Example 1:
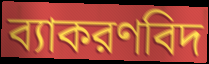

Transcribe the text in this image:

ব্যাকরণবিদ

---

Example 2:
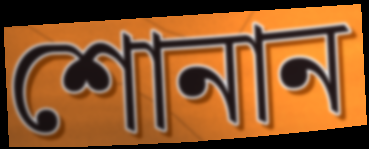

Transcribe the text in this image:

শোনান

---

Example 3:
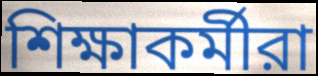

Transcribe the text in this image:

শিক্ষাকর্মীরা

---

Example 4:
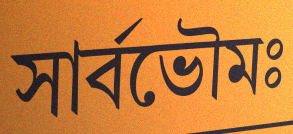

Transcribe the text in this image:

সার্বভৌমঃ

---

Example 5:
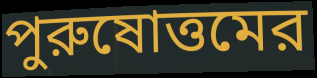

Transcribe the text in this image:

পুরুষোত্তমের